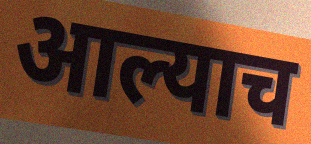
आल्याच